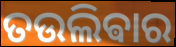
ତଉଲିଵାର